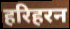
हरिहरन